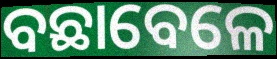
ବଛାବେଳେ